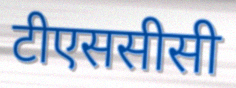
टीएससीसी